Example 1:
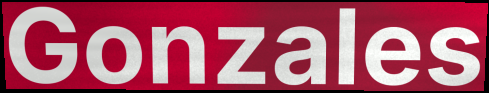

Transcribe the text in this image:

Gonzales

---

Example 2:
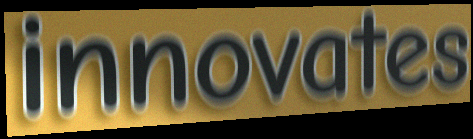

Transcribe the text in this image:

innovates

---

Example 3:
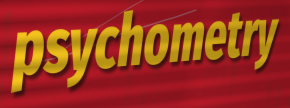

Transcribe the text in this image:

psychometry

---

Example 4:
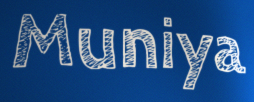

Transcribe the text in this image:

Muniya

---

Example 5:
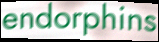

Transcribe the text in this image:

endorphins